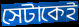
সেটাকেই